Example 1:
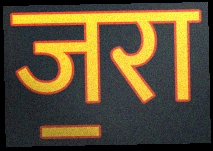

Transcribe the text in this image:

ज॒रा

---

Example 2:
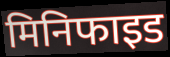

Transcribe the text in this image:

मिनिफाइड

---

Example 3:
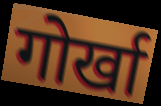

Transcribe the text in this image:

गोर्खा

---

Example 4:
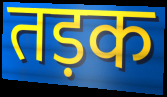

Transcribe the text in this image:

तड़क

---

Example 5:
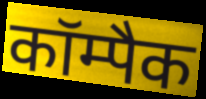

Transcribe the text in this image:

कॉम्पैक